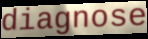
diagnose